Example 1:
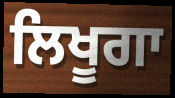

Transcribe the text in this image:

ਲਿਖੂਗਾ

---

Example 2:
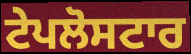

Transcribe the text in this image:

ਟੇਪਲੋਸਟਾਰ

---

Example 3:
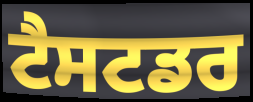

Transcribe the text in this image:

ਟੈਸਟਡਰ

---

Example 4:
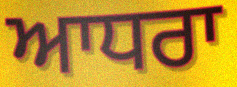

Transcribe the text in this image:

ਆਧਰਾ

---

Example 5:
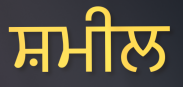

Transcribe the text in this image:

ਸ਼ਮੀਲ